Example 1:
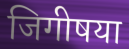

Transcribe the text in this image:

जिगीषया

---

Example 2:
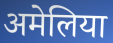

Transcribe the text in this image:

अमेलिया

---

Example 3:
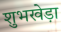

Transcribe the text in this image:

शुभखेड़ा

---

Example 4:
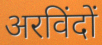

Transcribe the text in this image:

अरविंदों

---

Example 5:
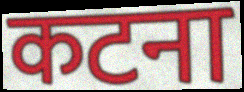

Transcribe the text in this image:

कटना